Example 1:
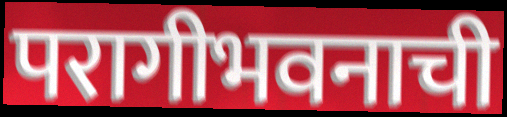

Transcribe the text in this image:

परागीभवनाची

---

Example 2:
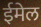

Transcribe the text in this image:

ईमेल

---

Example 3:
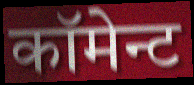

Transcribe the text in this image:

कॉमेन्ट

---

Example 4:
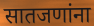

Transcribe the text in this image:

सातजणांना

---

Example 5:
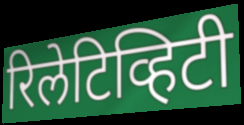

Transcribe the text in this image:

रिलेटिव्हिटी